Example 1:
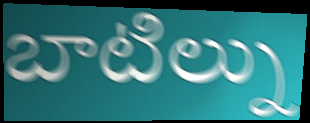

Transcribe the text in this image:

బాటిల్ను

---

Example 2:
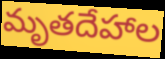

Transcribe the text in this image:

మృతదేహాల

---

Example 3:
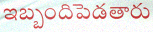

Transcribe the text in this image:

ఇబ్బందిపెడతారు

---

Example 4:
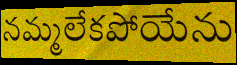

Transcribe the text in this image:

నమ్మలేకపోయేను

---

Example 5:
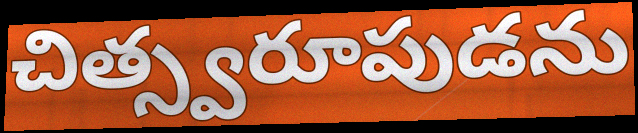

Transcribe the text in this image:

చిత్స్వరూపుడను